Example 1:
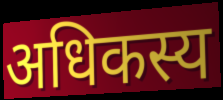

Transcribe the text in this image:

अधिकस्य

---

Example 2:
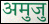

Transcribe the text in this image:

अमुजु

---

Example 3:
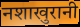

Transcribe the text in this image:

नशाखुरानी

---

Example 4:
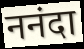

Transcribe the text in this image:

ननंदा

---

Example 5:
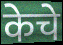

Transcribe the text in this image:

केचे